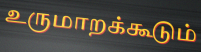
உருமாறக்கூடும்